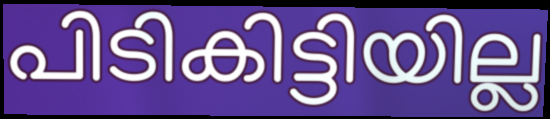
പിടികിട്ടിയില്ല